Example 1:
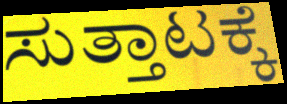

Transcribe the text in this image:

ಸುತ್ತಾಟಕ್ಕೆ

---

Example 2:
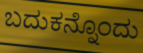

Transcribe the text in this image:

ಬದುಕನ್ನೊಂದು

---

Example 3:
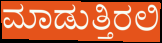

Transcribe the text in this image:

ಮಾಡುತ್ತಿರಲಿ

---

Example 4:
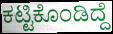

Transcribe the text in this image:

ಕಟ್ಟಿಕೊಂಡಿದ್ದೆ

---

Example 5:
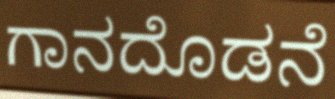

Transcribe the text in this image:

ಗಾನದೊಡನೆ